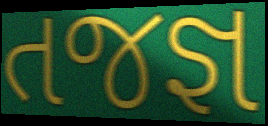
તજજ્ઞ